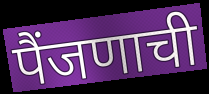
पैंजणाची